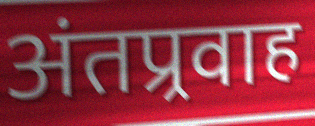
अंतप्र्रवाह